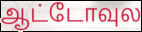
ஆட்டோவுல